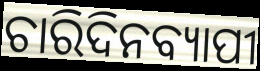
ଚାରିଦିନବ୍ୟାପୀ